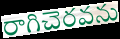
రాగిచెరవను